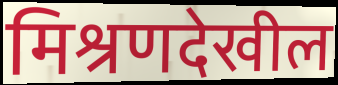
मिश्रणदेखील